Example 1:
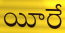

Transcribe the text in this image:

యీరే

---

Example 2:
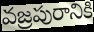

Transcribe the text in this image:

వజ్రపురానికి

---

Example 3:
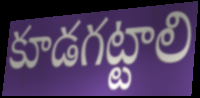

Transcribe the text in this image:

కూడగట్టాలి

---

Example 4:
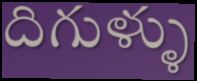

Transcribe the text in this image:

దిగుళ్ళు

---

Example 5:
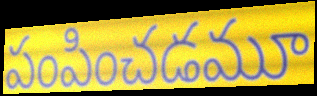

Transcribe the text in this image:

పంపించడమూ